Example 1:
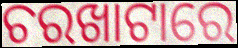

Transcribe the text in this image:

ଚରଖାଟାରେ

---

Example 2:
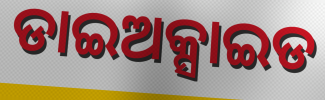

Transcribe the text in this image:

ଡାଇଅକ୍ସାଇଡ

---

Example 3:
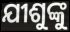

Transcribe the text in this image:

ଯୀଶୁଙ୍କୁ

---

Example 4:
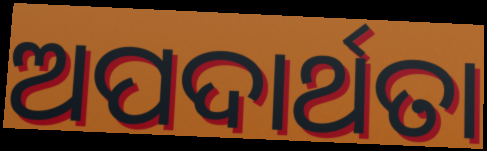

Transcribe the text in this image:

ଅପଦାର୍ଥତା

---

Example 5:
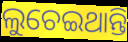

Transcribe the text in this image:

ଲୁଚେଇଥାନ୍ତି